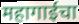
महागाईचा